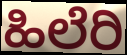
ಹಿಲೆರಿ